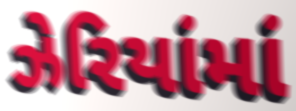
ઝેરિયાંમાં